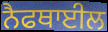
ਨੈਫਥਾਈਲ